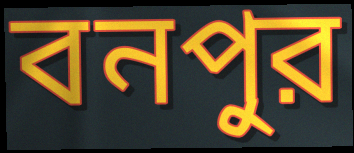
বনপুর